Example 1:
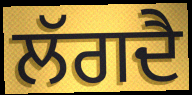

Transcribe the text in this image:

ਲੱਗਦੈ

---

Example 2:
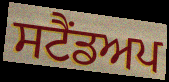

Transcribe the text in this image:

ਸਟੈਂਡਅਪ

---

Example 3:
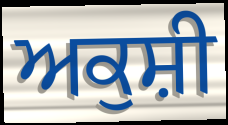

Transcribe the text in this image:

ਅਕੁਸ਼ੀ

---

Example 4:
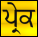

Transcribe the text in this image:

ਪ੍ਰੇਕ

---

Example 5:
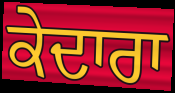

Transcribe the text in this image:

ਕੇਦਾਰਾ